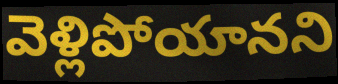
వెళ్లిపోయానని